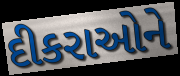
દીકરાઓને